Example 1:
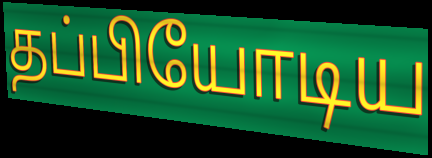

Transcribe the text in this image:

தப்பியோடிய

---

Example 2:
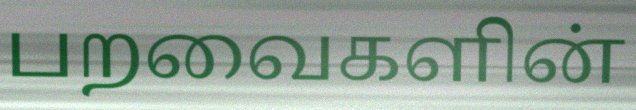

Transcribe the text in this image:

பறவைகளின்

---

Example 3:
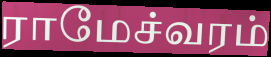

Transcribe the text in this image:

ராமேச்வரம்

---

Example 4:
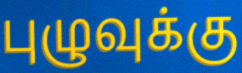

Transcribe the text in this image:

புழுவுக்கு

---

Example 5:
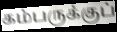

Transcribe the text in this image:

கம்பருக்குப்